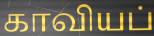
காவியப்